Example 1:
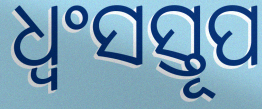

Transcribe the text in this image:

ଧ୍ୱଂସସ୍ତୂପ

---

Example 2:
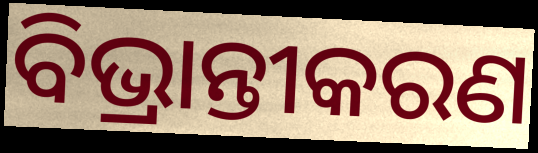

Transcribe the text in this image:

ବିଭ୍ରାନ୍ତୀକରଣ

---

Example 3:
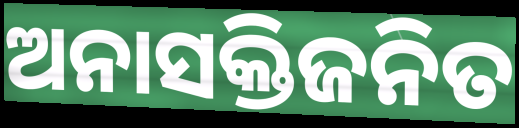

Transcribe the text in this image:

ଅନାସକ୍ତିଜନିତ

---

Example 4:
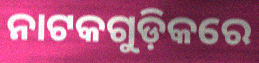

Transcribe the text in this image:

ନାଟକଗୁଡ଼ିକରେ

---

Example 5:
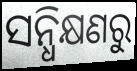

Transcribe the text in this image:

ସନ୍ଧିକ୍ଷଣରୁ